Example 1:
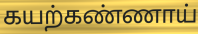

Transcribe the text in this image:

கயற்கண்ணாய்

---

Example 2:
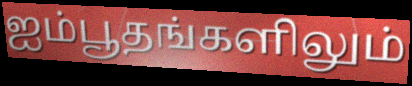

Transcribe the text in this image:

ஐம்பூதங்களிலும்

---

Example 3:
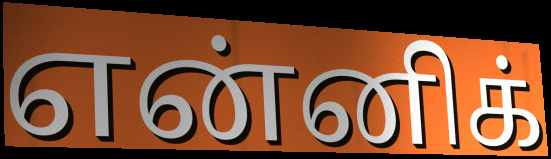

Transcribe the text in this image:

என்னிக்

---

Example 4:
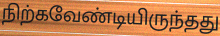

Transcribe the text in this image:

நிற்கவேண்டியிருந்தது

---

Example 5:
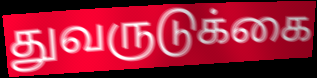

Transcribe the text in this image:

துவருடுக்கை